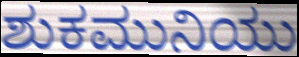
ಶುಕಮುನಿಯು